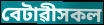
বেটাৱীসকল